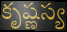
కృష్ణస్య